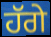
ਹੱਗੇ